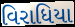
વિરાધિયા